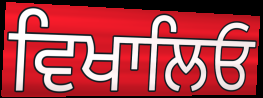
ਵਿਖਾਲਿਓ